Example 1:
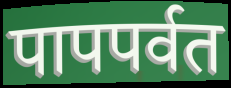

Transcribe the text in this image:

पापपर्वत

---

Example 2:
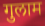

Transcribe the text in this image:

गुलाम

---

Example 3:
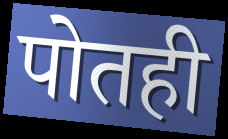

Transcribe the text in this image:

पोतही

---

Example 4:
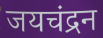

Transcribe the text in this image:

जयचंद्रन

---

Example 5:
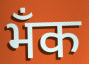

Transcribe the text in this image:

भँक